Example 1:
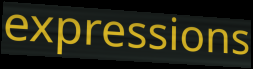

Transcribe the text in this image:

expressions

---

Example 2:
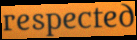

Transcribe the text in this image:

respected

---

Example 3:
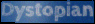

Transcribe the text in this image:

Dystopian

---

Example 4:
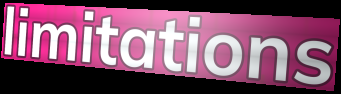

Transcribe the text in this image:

limitations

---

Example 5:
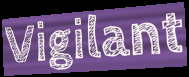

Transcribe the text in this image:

Vigilant